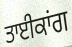
ਤਾਈਕਾਂਗ